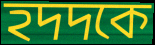
হদদকে